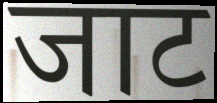
जाट